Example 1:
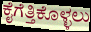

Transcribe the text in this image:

ಕೈಗೆತ್ತಿಕೊಳ್ಳಲು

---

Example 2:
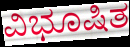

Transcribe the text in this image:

ವಿಭೂಷಿತ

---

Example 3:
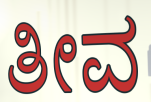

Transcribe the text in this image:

ತೀವ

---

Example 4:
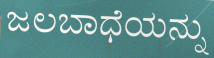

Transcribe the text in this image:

ಜಲಬಾಧೆಯನ್ನು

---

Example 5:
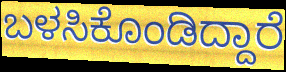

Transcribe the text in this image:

ಬಳಸಿಕೊಂಡಿದ್ದಾರೆ